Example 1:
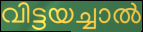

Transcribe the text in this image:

വിട്ടയച്ചാൽ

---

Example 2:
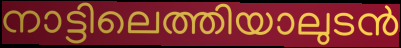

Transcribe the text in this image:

നാട്ടിലെത്തിയാലുടൻ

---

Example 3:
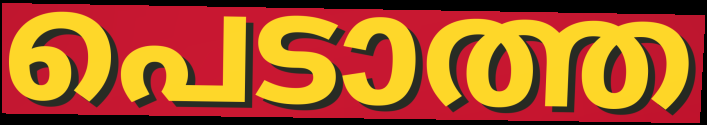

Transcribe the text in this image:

പെടാത്ത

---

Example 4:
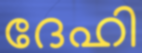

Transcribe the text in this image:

ദേഹി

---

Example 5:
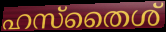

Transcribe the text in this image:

ഹസ്തൈശ്